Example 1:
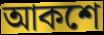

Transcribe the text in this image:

আকশে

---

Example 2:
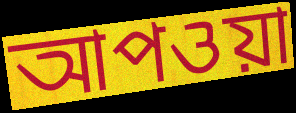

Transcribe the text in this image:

আপওয়া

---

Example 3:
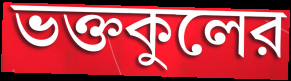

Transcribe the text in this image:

ভক্তকুলের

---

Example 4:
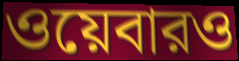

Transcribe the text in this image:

ওয়েবারও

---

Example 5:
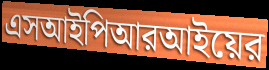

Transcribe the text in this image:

এসআইপিআরআইয়ের